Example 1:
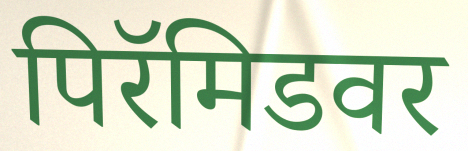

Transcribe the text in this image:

पिरॅमिडवर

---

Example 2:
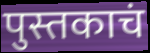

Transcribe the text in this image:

पुस्तकाचं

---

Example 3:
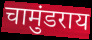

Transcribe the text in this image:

चामुंडराय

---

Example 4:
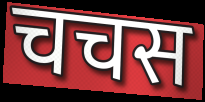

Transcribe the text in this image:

चचस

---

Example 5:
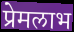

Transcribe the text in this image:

प्रेमलाभ